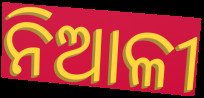
ନିଆଳୀ